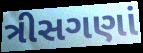
ત્રીસગણાં